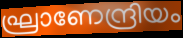
ഘ്രാണേന്ദ്രിയം